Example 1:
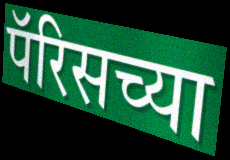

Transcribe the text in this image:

पॅरिसच्या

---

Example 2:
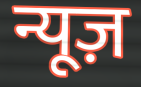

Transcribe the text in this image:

न्यूज़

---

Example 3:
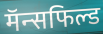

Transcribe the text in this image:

मॅन्सफिल्ड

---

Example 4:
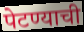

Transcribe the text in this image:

पेटण्याची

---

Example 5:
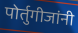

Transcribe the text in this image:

पोर्तुगीजांनी